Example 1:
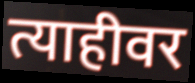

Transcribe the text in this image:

त्याहीवर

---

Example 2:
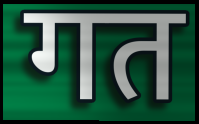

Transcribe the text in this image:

गत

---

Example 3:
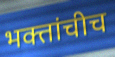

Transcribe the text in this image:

भक्तांचीच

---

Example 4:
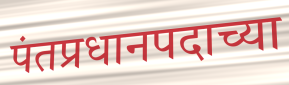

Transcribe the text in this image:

पंतप्रधानपदाच्या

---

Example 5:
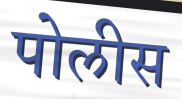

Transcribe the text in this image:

पोलीस